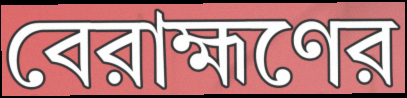
বেরাহ্মণের